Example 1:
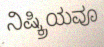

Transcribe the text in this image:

ನಿಷ್ಕ್ರಿಯವೂ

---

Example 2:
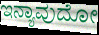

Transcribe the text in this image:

ಇನ್ಯಾವುದೋ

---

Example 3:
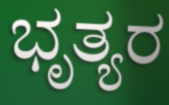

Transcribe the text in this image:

ಭೃತ್ಯರ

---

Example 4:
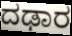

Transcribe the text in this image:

ದಢಾರ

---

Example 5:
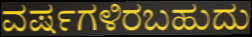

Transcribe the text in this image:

ವರ್ಷಗಳಿರಬಹುದು